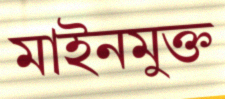
মাইনমুক্ত